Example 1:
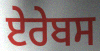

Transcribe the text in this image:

ਏਰੇਬਸ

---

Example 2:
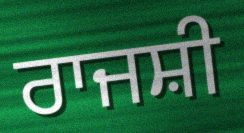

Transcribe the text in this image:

ਰਾਜਸ਼ੀ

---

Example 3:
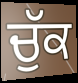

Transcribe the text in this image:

ਚੁੱਕ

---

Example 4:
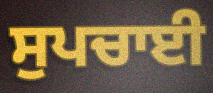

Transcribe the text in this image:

ਸੁਪਚਾਈ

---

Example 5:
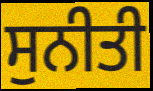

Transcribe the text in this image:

ਸੁਨੀਤੀ